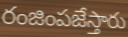
రంజింపజేస్తారు